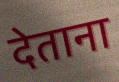
देताना